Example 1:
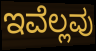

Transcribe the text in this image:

ಇವೆಲ್ಲವು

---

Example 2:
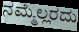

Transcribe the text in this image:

ನಮ್ಮೆಲ್ಲರದು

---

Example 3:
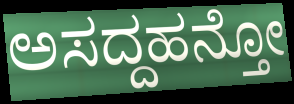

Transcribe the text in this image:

ಅಸದ್ದಹನ್ತೋ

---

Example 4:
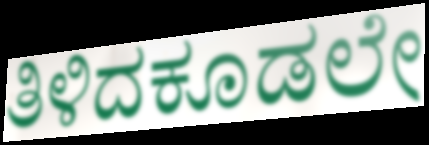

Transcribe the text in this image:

ತಿಳಿದಕೂಡಲೇ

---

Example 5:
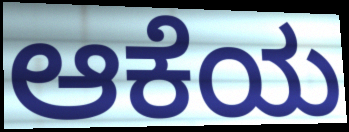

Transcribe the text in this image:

ಆಕೆಯ